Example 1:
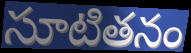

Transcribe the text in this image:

సూటితనం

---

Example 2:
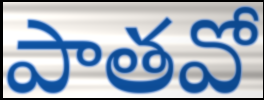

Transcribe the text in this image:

పాతవో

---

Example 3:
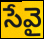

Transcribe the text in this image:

సేవై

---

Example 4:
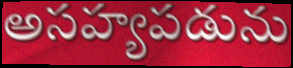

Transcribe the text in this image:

అసహ్యపడును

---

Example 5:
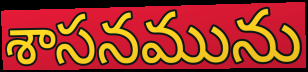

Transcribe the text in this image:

శాసనమును